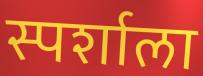
स्पर्शाला